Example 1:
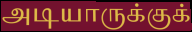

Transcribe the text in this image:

அடியாருக்குக்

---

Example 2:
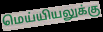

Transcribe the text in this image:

மெய்யியலுக்கு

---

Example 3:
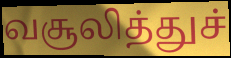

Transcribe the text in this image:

வசூலித்துச்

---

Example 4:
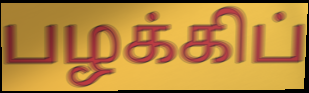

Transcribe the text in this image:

பழக்கிப்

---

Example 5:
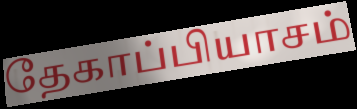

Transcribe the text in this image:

தேகாப்பியாசம்